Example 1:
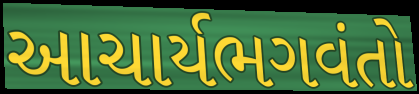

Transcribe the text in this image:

આચાર્યભગવંતો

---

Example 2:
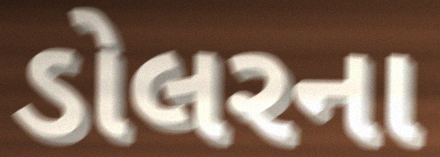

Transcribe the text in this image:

ડોલરના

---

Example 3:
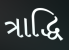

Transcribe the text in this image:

ત્રાદ્ધિ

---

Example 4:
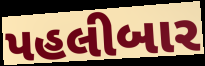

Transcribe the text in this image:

પહલીબાર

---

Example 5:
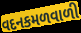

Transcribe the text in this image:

વદનકમળવાળી